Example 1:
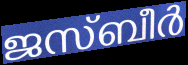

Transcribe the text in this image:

ജസ്ബീർ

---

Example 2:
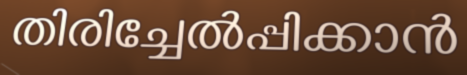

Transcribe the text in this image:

തിരിച്ചേൽപ്പിക്കാൻ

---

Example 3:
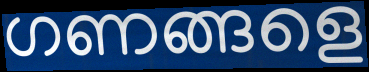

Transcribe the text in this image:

ഗണങ്ങളെ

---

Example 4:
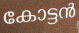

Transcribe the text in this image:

കോട്ടൻ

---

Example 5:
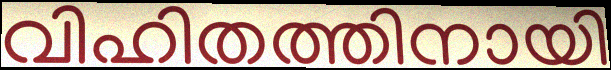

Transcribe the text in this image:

വിഹിതത്തിനായി